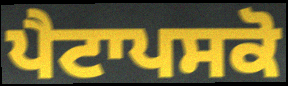
ਪੈਟਾਪਸਕੋ